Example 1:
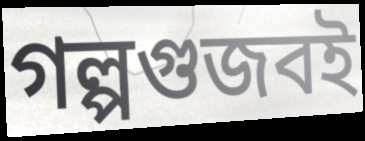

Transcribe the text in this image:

গল্পগুজবই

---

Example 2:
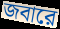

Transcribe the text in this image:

জবারে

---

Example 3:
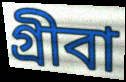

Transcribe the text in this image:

গ্রীবা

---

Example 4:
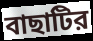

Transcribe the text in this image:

বাছাটির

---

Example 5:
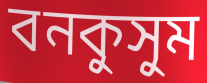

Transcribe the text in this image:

বনকুসুম